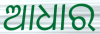
ଆଧାର